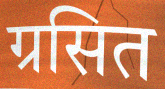
ग्रसित